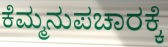
ಕೆಮ್ಮನುಪಚಾರಕ್ಕೆ